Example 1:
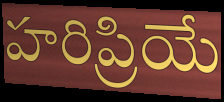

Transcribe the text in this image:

హరిప్రియే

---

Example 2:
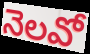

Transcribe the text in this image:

నెలవో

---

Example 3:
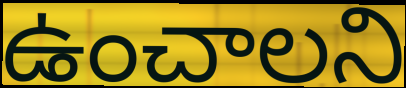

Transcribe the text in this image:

ఉంచాలని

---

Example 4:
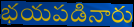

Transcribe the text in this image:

భయపడినారు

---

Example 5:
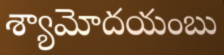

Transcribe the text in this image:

శ్యామోదయంబు